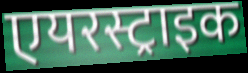
एयरस्ट्राइक